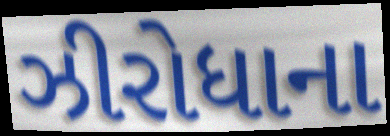
ઝીરોધાના